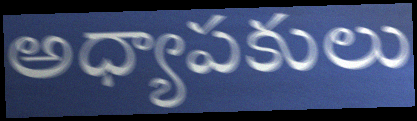
అధ్యాపకులు